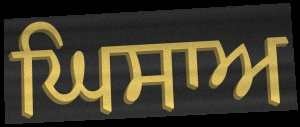
ਘਿਸਾਅ